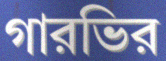
গারভির